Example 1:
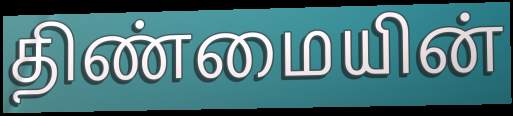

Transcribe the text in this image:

திண்மையின்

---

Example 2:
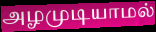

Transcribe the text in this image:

அழமுடியாமல்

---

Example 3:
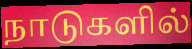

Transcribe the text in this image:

நாடுகளில்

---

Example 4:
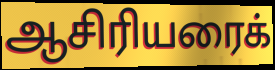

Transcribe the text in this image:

ஆசிரியரைக்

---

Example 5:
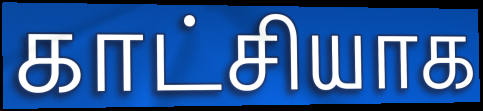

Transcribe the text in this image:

காட்சியாக